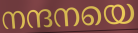
നന്ദനയെ